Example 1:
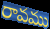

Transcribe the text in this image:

రావము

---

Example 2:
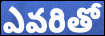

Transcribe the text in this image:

ఎవరితో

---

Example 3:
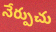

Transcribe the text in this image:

నేర్పుచు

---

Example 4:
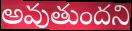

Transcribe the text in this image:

అవుతుందని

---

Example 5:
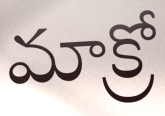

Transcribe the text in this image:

మాక్రో